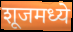
शूजमध्ये